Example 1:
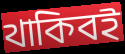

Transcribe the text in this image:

থাকিবই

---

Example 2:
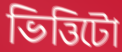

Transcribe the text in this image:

ভিত্তিটো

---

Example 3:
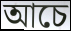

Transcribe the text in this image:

আচে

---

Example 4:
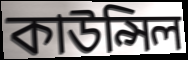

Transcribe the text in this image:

কাউন্সিল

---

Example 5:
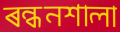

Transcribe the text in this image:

ৰন্ধনশালা